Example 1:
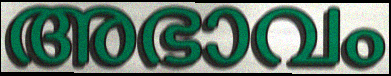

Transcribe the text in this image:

അഭാവം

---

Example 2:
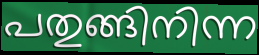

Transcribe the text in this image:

പതുങ്ങിനിന്ന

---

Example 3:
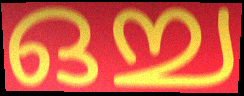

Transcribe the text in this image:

ഒച്ച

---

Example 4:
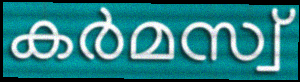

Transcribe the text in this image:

കർമസ്വ്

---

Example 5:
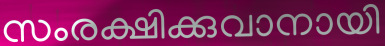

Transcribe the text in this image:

സംരക്ഷിക്കുവാനായി